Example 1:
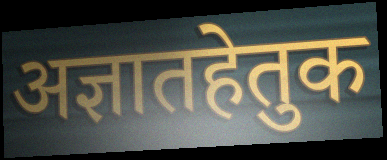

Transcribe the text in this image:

अज्ञातहेतुक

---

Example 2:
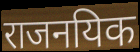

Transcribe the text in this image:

राजनयिक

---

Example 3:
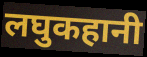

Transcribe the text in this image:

लघुकहानी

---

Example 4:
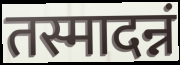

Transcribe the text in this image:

तस्मादन्नं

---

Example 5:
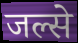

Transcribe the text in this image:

जल्से